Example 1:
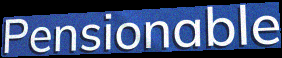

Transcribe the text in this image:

Pensionable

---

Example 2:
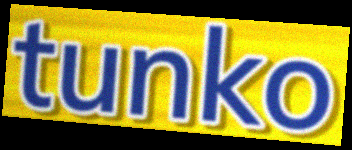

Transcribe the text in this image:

tunko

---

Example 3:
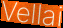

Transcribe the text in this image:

Vellai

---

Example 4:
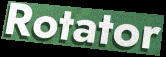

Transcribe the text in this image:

Rotator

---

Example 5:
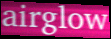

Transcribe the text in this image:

airglow